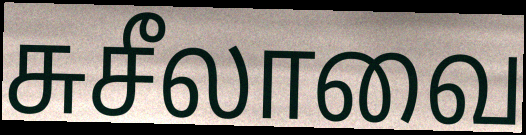
சுசீலாவை